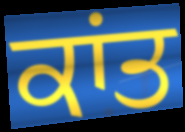
ਕਾਂਤ